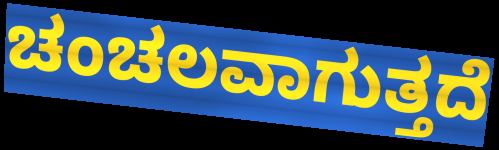
ಚಂಚಲವಾಗುತ್ತದೆ